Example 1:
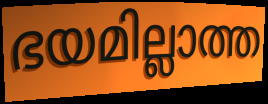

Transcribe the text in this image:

ഭയമില്ലാത്ത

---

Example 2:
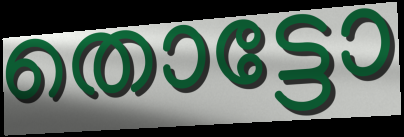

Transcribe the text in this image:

തൊട്ടോ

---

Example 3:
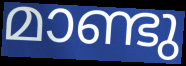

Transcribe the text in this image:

മാണ്ടു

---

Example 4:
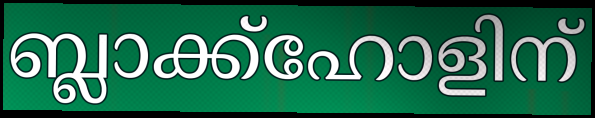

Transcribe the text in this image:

ബ്ലാക്ക്ഹോളിന്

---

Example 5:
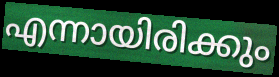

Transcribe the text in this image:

എന്നായിരിക്കും